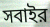
সবাইর